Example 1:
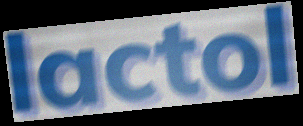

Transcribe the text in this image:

lactol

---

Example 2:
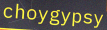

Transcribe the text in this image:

choygypsy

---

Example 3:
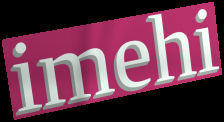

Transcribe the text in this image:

imehi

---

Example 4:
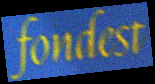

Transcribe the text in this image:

fondest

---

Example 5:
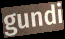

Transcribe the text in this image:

gundi